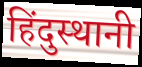
हिंदुस्थानी